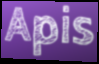
Apis